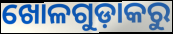
ଖୋଳଗୁଡ଼ାକରୁ